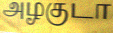
அழகுடா